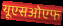
यूएसओएफ